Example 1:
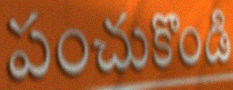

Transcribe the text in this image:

పంచుకొండి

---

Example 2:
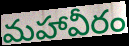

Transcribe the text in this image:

మహావీరం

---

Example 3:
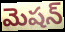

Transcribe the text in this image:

మెషన్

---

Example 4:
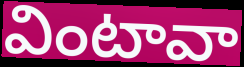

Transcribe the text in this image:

వింటావా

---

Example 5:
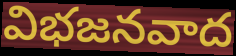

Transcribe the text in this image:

విభజనవాద